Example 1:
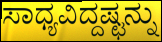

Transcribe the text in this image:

ಸಾಧ್ಯವಿದ್ದಷ್ಟನ್ನು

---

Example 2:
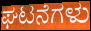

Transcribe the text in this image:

ಘಟನೆಗಳು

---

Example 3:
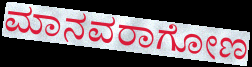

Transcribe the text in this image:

ಮಾನವರಾಗೋಣ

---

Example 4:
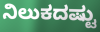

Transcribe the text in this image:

ನಿಲುಕದಷ್ಟು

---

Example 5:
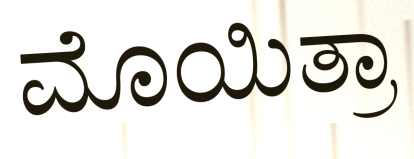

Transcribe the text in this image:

ಮೊಯಿತ್ರಾ